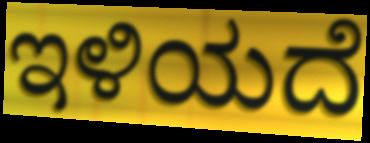
ಇಳಿಯದೆ